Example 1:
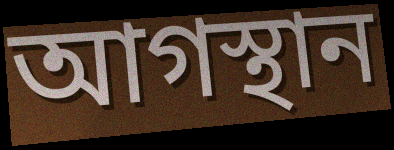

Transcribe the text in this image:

আগস্থান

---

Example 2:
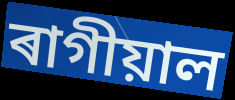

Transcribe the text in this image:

ৰাগীয়াল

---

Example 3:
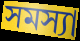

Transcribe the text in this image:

সমস্যা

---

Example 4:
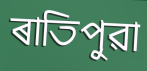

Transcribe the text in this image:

ৰাতিপুৱা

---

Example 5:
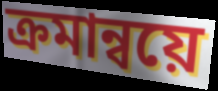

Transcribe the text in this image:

ক্ৰমান্বয়ে